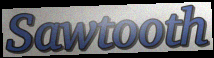
Sawtooth